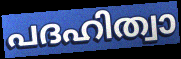
പദഹിത്വാ